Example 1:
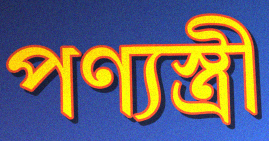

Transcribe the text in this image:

পণ্যস্ত্রী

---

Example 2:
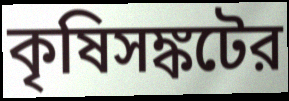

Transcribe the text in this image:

কৃষিসঙ্কটের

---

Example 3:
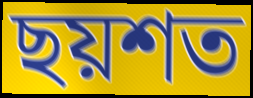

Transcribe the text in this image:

ছয়শত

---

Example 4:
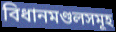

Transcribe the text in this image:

বিধানমণ্ডলসমূহ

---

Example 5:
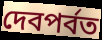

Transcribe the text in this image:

দেবপর্বত